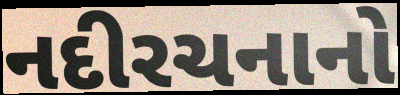
નદીરચનાનો